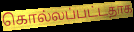
கொல்லப்பட்டதாக